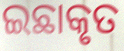
ଇଛାକୃତ